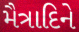
મૈત્રાદિને